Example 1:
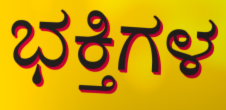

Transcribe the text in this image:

ಭಕ್ತಿಗಳ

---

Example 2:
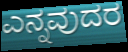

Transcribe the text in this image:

ಎನ್ನವುದರ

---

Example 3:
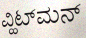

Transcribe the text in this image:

ವ್ಹಿಟ್‌ಮನ್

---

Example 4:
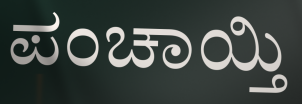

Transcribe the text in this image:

ಪಂಚಾಯ್ತಿ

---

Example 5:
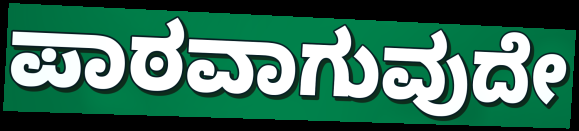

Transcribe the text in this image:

ಪಾಠವಾಗುವುದೇ